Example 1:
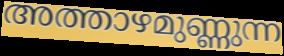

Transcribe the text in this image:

അത്താഴമുണ്ണുന്ന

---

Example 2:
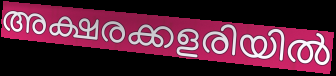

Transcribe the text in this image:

അക്ഷരക്കളരിയിൽ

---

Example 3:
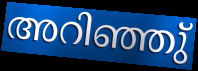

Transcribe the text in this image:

അറിഞ്ഞു്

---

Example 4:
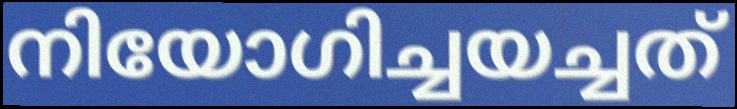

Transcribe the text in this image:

നിയോഗിച്ചയച്ചത്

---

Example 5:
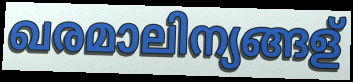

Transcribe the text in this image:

ഖരമാലിന്യങ്ങള്